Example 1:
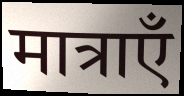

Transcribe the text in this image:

मात्राएँ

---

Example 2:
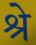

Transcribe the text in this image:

श्रे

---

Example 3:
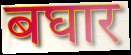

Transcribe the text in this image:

बघार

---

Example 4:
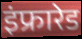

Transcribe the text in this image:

इंफ्रारेड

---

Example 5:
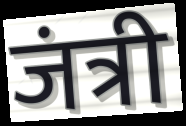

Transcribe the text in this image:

जंत्री